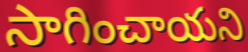
సాగించాయని